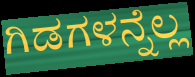
ಗಿಡಗಳನ್ನೆಲ್ಲ